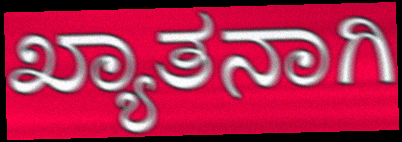
ಖ್ಯಾತನಾಗಿ